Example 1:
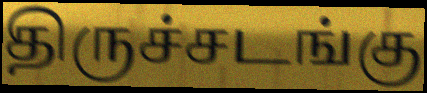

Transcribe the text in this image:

திருச்சடங்கு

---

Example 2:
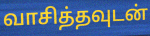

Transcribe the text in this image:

வாசித்தவுடன்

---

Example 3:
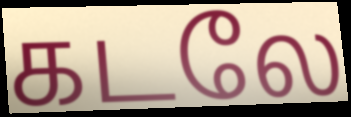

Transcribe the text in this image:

கடலே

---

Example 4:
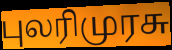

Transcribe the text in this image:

புலரிமுரசு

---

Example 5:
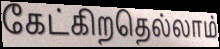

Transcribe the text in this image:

கேட்கிறதெல்லாம்